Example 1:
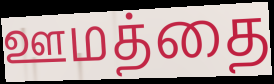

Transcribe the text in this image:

ஊமத்தை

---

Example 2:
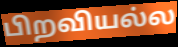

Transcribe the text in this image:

பிறவியல்ல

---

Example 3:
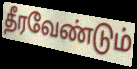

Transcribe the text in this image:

தீரவேண்டும்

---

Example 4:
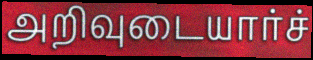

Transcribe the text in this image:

அறிவுடையார்ச்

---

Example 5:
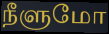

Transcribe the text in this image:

நீளுமோ